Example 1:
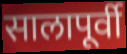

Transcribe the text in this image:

सालापूर्वी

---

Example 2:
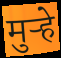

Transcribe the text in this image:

मुऱ्हे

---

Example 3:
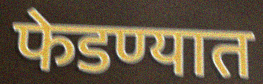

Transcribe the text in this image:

फेडण्यात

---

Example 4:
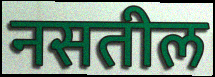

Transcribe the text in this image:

नसतील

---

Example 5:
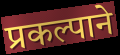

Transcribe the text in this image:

प्रकल्पाने